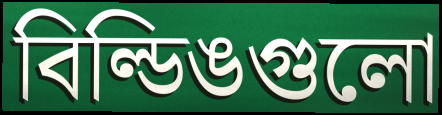
বিল্ডিঙগুলো